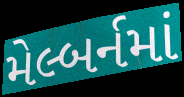
મેલ્બર્નમાં